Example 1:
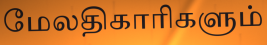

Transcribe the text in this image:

மேலதிகாரிகளும்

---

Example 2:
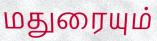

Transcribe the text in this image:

மதுரையும்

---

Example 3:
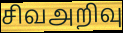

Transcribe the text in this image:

சிவஅறிவு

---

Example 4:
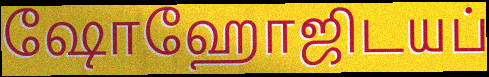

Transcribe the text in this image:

ஷோஹோஜிடயப்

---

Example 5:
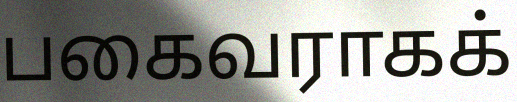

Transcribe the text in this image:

பகைவராகக்